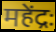
महेंद्रः